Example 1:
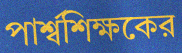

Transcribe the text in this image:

পার্শ্বশিক্ষকের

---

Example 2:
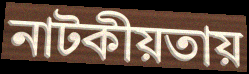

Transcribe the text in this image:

নাটকীয়তায়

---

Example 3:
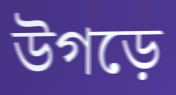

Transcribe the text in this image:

উগড়ে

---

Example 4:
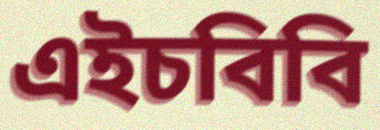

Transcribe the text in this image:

এইচবিবি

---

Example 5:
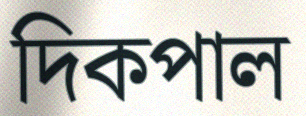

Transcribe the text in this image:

দিকপাল